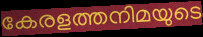
കേരളത്തനിമയുടെ